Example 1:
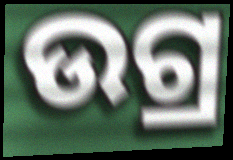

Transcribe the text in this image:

ଉଗ୍ର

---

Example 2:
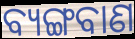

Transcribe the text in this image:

ବ୍ୟଙ୍ଗବାଣ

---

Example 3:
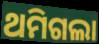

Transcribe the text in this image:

ଥମିଗଲା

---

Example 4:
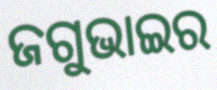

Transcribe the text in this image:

ଜଗୁଭାଇର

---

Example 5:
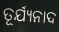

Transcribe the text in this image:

ତୂର୍ଯ୍ୟନାଦ